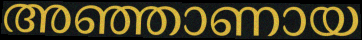
അഞ്ഞാണായ